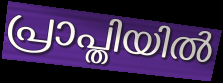
പ്രാപ്തിയിൽ